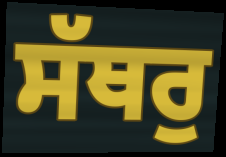
ਸੱਥਰੁ